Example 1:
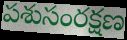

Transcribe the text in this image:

పశుసంరక్షణ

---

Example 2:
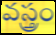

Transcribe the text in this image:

వస్త్రం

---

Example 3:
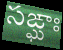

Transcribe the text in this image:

సఙ్ఘాః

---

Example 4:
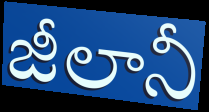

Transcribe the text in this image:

జీలానీ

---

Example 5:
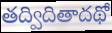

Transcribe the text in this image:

తద్విదితాదథో